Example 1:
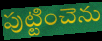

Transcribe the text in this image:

పుట్టించెను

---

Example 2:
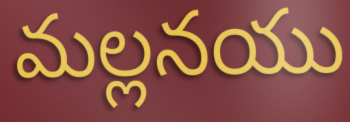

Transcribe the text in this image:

మల్లనయు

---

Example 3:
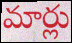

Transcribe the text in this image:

మార్లు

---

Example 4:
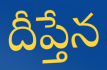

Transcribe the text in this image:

దీప్తేన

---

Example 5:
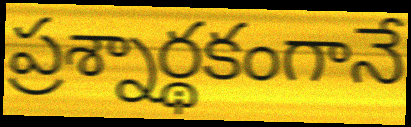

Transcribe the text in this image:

ప్రశ్నార్థకంగానే